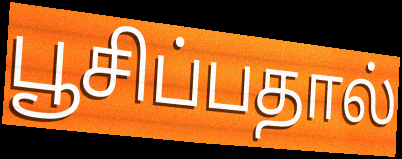
பூசிப்பதால்